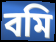
বমি